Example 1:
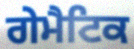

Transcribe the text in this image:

ਗੇਮੈਟਿਕ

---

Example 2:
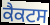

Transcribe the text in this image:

ਕੈਕਟਸ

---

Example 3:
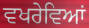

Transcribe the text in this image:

ਵਖਰੇਵਿਆਂ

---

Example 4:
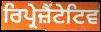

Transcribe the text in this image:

ਰਿਪ੍ਰੇਜ਼ੈਂਟੇਟਿਵ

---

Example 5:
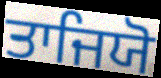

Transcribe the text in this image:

ਤਾਜਿਯੋ